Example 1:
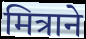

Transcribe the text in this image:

मित्राने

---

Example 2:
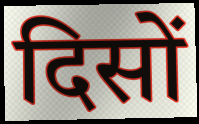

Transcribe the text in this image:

दिसों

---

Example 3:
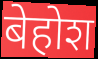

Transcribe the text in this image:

बेहोश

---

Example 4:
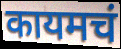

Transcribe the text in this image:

कायमचं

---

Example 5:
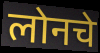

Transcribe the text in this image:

लोनचे